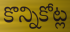
కొన్నికోట్ల